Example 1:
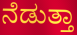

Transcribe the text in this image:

ನೆಡುತ್ತಾ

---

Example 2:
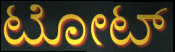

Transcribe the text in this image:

ಟೋಟ್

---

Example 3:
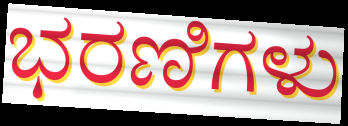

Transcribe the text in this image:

ಭರಣಿಗಳು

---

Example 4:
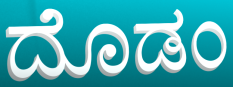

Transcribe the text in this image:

ದೊಡಂ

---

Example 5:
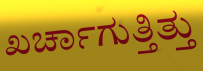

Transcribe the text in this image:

ಖರ್ಚಾಗುತ್ತಿತ್ತು